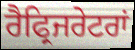
ਰੈਫ੍ਰਿਜਰੇਟਰਾਂ